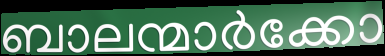
ബാലന്മാർക്കോ